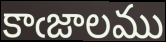
కాఁజాలము